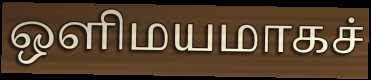
ஒளிமயமாகச்